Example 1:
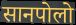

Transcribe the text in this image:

सानपोलो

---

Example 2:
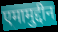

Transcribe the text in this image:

एमामुद्दीन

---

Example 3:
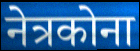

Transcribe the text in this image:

नेत्रकोना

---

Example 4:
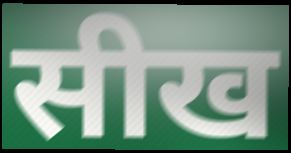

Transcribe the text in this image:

सीख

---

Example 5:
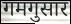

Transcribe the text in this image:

गमगुसार